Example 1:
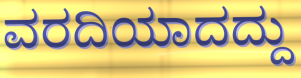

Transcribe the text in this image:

ವರದಿಯಾದದ್ದು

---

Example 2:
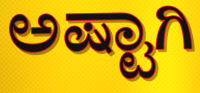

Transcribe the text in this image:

ಅಷ್ಟಾಗಿ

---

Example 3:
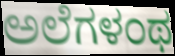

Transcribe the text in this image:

ಅಲೆಗಳಂಥ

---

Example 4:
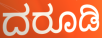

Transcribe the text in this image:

ದರೂಡಿ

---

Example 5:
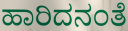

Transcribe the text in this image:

ಹಾರಿದನಂತೆ